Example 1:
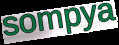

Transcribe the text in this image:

sompya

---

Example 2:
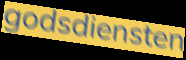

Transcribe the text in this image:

godsdiensten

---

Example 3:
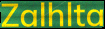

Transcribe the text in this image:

Zalhlta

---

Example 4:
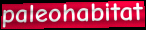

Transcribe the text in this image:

paleohabitat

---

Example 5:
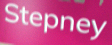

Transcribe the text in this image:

Stepney